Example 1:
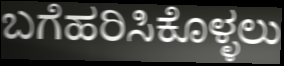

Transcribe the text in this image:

ಬಗೆಹರಿಸಿಕೊಳ್ಳಲು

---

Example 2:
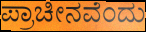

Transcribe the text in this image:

ಪ್ರಾಚೀನವೆಂದು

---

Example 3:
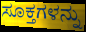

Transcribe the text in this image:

ಸೂಕ್ತಗಳನ್ನು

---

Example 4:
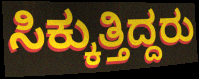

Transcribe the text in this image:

ಸಿಕ್ಕುತ್ತಿದ್ದರು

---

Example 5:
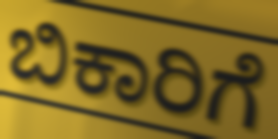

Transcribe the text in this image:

ಬಿಕಾರಿಗೆ